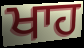
ਖਾਹ